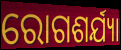
ରୋଗଶର୍ଯ୍ୟା